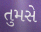
તુમસે